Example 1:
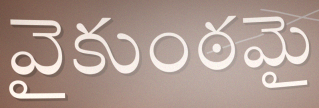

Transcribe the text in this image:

వైకుంఠమై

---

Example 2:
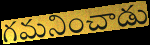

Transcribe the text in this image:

గమనించాడు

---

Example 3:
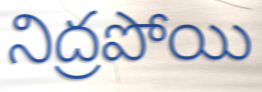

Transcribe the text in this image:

నిద్రపోయి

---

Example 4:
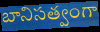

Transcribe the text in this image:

బానిసత్వంగా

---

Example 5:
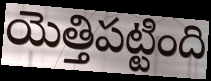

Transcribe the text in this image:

యెత్తిపట్టింది